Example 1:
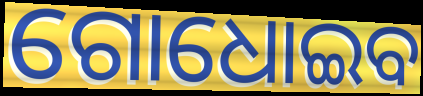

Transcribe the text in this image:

ଗୋଧୋଇବ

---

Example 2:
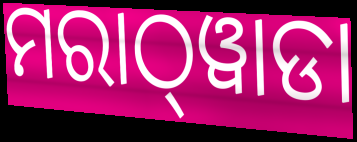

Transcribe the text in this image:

ମରାଠ୍‌ୱାଡା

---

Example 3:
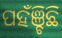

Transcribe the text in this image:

ପହଁଞ୍ଚିଛି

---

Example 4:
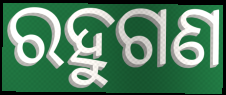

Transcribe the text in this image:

ରହୁଗଣ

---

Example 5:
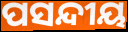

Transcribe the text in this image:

ପସନ୍ଦୀୟ